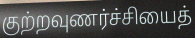
குற்றவுணர்ச்சியைத்